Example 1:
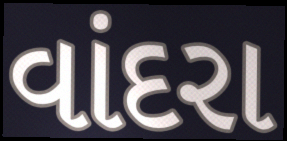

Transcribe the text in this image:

વાંદરા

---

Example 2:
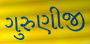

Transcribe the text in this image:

ગુરુણીજી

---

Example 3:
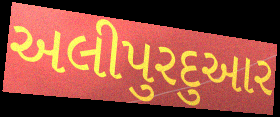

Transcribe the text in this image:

અલીપુરદુઆર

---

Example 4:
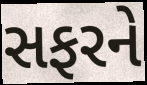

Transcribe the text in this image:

સફરને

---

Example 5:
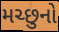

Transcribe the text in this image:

મચ્છુનો